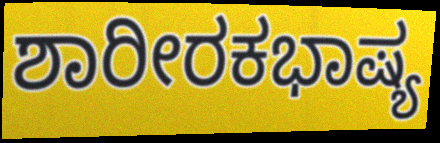
ಶಾರೀರಕಭಾಷ್ಯ